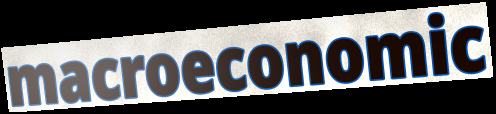
macroeconomic